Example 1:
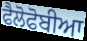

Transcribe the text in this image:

ਫੈਲੋਫੋਬੀਆ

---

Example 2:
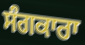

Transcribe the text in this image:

ਸੰਗਕਾਰਾ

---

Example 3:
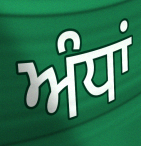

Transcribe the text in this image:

ਅੰਧਾਂ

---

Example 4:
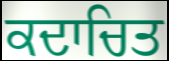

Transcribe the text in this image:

ਕਦਾਚਿਤ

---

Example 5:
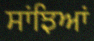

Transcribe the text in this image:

ਸਾਂਝਿਆਂ